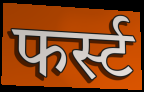
फर्स्ट